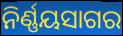
ନିର୍ଣ୍ଣୟସାଗର